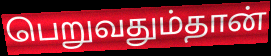
பெறுவதும்தான்